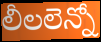
లీలలెన్నో